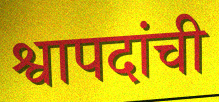
श्वापदांची